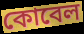
কোবেল